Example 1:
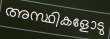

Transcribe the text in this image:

അസ്ഥികളോടു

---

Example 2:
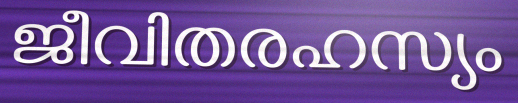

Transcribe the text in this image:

ജീവിതരഹസ്യം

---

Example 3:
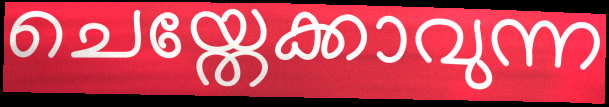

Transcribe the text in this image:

ചെയ്തേക്കാവുന്ന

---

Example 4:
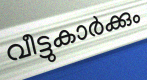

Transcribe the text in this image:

വീട്ടുകാർക്കും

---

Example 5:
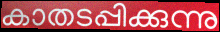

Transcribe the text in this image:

കാതടപ്പിക്കുന്നു